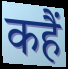
कहैं